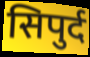
सिपुर्द